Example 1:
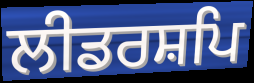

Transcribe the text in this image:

ਲੀਡਰਸ਼ਪਿ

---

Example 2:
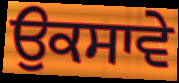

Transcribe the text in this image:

ਉਕਸਾਵੇ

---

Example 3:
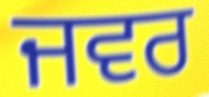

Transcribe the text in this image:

ਜਵਰ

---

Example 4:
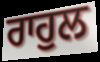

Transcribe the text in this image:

ਰਾਹੁਲ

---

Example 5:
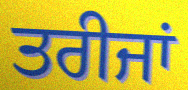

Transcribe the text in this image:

ਤਰੀਜਾਂ